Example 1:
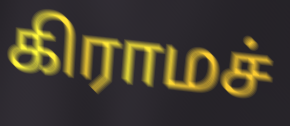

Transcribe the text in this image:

கிராமச்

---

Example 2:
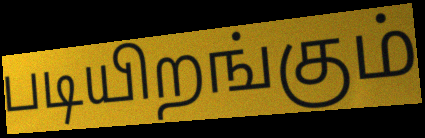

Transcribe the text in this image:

படியிறங்கும்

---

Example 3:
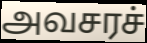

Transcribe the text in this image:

அவசரச்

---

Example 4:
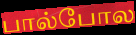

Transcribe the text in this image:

பால்போல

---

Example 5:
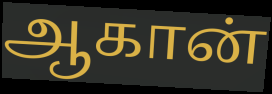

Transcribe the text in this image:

ஆகான்